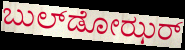
ಬುಲ್‌ಡೋಝರ್